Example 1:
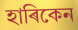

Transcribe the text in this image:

হাৰিকেন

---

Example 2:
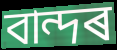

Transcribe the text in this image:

বান্দৰ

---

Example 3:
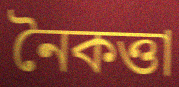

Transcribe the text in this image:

নৈকত্তা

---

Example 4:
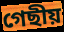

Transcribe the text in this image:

গেছীয়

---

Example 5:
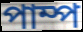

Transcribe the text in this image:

পাম্প